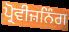
ਪ੍ਰੋਵੀਜ਼ਨਿੰਗ